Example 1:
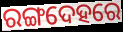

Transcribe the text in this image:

ରଙ୍ଗଦେହରେ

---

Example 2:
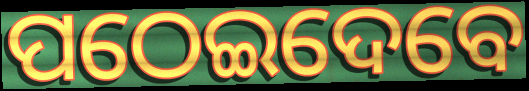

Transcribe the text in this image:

ପଠେଇଦେବେ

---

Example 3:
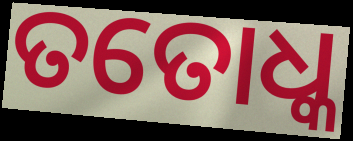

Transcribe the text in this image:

ତତୋଧ୍କ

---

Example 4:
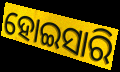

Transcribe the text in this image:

ହୋଇସାରି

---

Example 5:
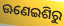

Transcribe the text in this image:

ଊଣେଇଶିରୁ